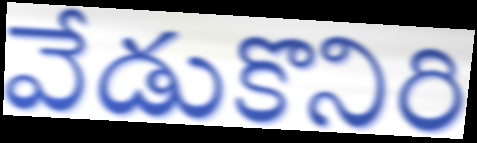
వేడుకొనిరి